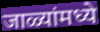
जाळ्यांमध्ये